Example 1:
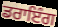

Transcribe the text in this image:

ਡਰਾਇੰਗ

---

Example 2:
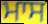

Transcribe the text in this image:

ਮਾਸ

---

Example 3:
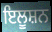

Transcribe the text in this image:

ਇਲੂਸ਼ਨ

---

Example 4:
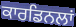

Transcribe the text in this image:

ਕਾਰਡਿਨਲਾਂ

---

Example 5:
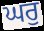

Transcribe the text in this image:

ਘਰੁ